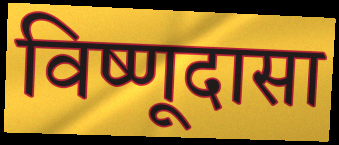
विष्णूदासा